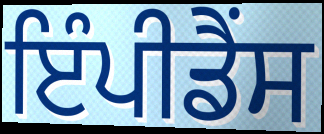
ਇੰਪੀਡੈਂਸ